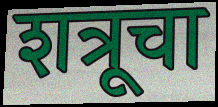
शत्रूचा